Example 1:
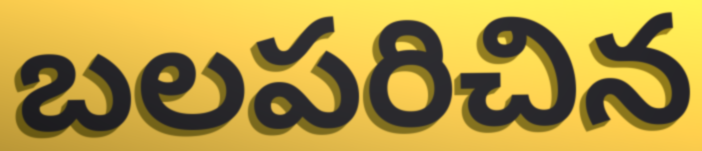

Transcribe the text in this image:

బలపరిచిన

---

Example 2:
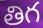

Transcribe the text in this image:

తిగ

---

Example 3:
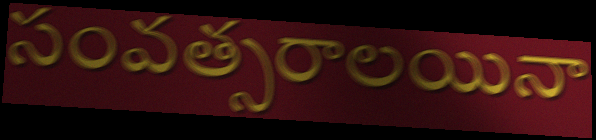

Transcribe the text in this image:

సంవత్సరాలయినా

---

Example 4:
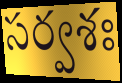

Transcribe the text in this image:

సర్వశః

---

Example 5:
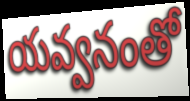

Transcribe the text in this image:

యవ్వనంతో